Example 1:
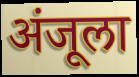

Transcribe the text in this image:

अंजूला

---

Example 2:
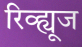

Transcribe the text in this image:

रिव्ह्यूज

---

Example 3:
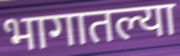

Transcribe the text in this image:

भागातल्या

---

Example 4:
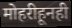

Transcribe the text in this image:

मोहरीहूनही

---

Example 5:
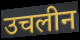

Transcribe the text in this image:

उचलीन